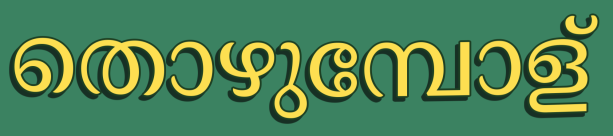
തൊഴുമ്പോള്